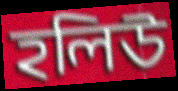
হলিউ